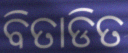
ବିତାଡିତ